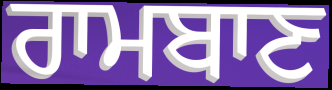
ਰਾਮਬਾਣ